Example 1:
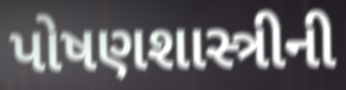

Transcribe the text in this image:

પોષણશાસ્ત્રીની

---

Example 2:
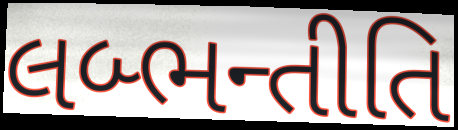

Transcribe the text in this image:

લબ્ભન્તીતિ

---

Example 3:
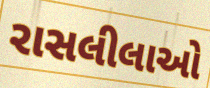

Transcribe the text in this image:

રાસલીલાઓ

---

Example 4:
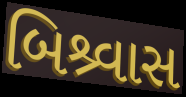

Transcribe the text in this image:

બિશ્ર્વાસ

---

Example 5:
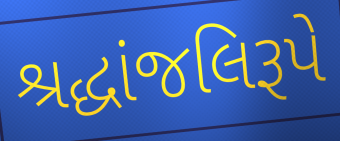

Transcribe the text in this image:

શ્રદ્ધાંજલિરૂપે